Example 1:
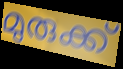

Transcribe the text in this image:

മുരുക്ക്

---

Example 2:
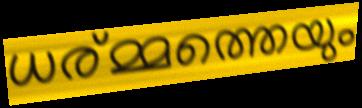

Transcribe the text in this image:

ധര്മ്മത്തെയും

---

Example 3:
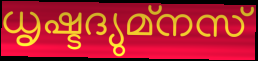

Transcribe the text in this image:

ധൃഷ്ടദ്യുമ്നസ്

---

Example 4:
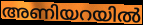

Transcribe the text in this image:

അണിയറയിൽ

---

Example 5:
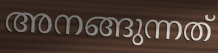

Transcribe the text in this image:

അനങ്ങുന്നത്